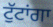
ਟੁੱਟਾਂਗਾ